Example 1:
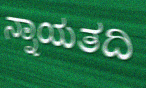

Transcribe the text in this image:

ನ್ನಾಯತದಿ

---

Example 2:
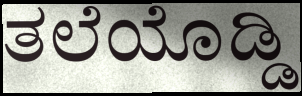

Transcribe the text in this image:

ತಲೆಯೊಡ್ಡಿ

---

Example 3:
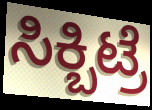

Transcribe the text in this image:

ಸಿಕ್ಬಿಟ್ರೆ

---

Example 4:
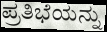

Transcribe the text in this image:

ಪ್ರತಿಭೆಯನ್ನು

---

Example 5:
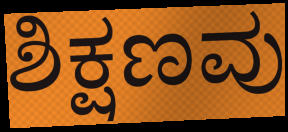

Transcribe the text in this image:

ಶಿಕ್ಷಣವು